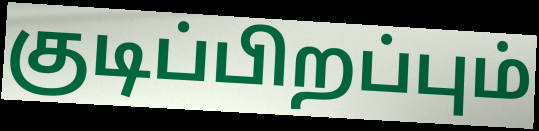
குடிப்பிறப்பும்